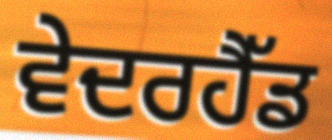
ਵੇਦਰਹੈੱਡ